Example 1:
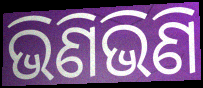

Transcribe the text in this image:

ଭିଣିଭିଣି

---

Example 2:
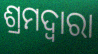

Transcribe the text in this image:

ଶ୍ରମଦ୍ୱାରା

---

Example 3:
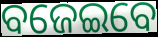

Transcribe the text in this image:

ବଜେଇବେ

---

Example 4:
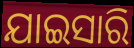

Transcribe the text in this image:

ଯାଇସାରି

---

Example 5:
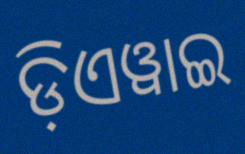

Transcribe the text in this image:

ଡ଼ିଏୱାଇ